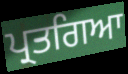
ਪ੍ਰਤਗਿਆ